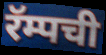
रॅम्पची